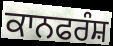
ਕਾਨਫਰੰਸ਼